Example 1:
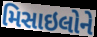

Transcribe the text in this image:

મિસાઇલોને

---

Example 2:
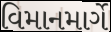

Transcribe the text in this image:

વિમાનમાર્ગે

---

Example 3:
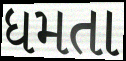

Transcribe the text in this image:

ધમતા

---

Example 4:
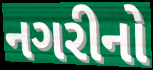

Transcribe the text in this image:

નગરીનો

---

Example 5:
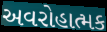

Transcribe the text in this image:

અવરોહાત્મક